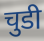
चुडी